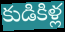
కుడికిళ్ల